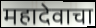
महादेवाचा